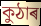
কুঠাৰ